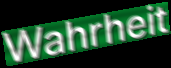
Wahrheit